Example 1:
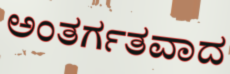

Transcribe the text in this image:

ಅಂತರ್ಗತವಾದ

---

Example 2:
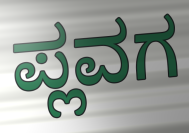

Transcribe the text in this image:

ಪ್ಲವಗ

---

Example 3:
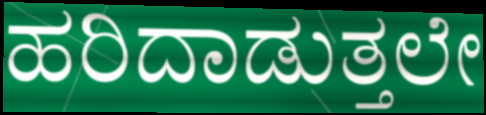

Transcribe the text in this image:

ಹರಿದಾಡುತ್ತಲೇ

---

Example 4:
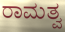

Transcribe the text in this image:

ರಾಮತ್ವ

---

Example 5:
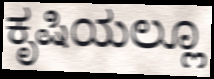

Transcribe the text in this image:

ಕೃಷಿಯಲ್ಲೂ